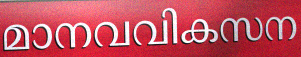
മാനവവികസന